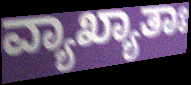
ವ್ಯಾಖ್ಯಾತಾಃ